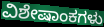
ವಿಶೇಷಾಂಕಗಳು